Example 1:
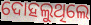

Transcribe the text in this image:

ଦୋହଲୁଥିଲେ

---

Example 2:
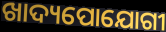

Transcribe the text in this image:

ଖାଦ୍ୟପୋଯୋଗୀ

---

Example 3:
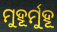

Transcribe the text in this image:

ମୁହୂର୍ମୁହୂ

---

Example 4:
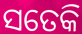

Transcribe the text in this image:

ସତେକି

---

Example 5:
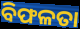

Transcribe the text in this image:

ବିଫଳତା